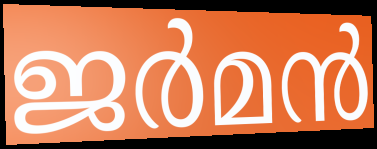
ജർമൻ